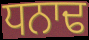
ਧਨਾਢ